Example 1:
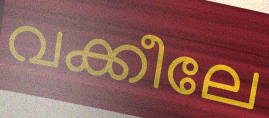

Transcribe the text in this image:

വക്കീലേ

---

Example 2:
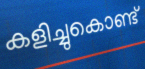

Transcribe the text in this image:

കളിച്ചുകൊണ്ട്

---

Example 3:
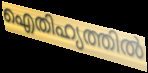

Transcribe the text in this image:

ഐതിഹ്യത്തിൽ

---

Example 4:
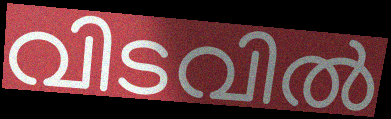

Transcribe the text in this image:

വിടവിൽ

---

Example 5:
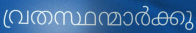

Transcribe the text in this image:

വ്രതസ്ഥന്മാർക്കു